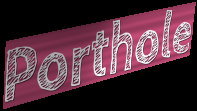
Porthole